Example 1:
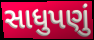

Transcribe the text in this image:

સાધુપણું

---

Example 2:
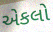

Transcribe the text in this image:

એકલો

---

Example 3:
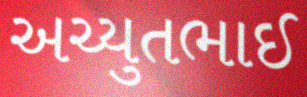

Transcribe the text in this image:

અચ્યુતભાઈ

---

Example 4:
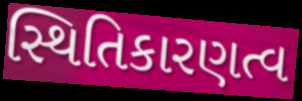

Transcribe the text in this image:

સ્થિતિકારણત્વ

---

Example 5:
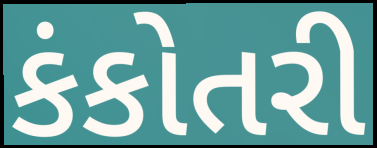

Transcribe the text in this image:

કંકોતરી